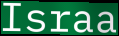
Israa